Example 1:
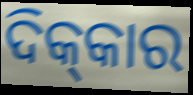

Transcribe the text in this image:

ଦିକ୍‌କାର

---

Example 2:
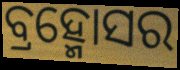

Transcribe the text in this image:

ବ୍ରହ୍ମୋସର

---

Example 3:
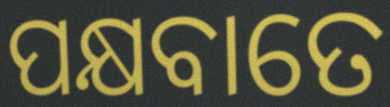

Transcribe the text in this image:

ପକ୍ଷବାତେ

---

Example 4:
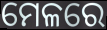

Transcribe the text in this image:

ମେଳରେ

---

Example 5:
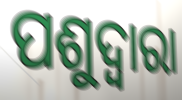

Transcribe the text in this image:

ପଶୁଦ୍ୱାରା